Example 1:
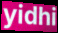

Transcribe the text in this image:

yidhi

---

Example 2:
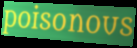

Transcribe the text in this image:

poisonous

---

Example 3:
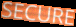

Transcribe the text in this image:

SECURE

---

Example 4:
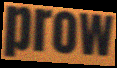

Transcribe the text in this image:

prow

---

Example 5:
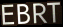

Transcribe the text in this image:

EBRT